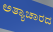
ಅತ್ಯಾಚಾರದ